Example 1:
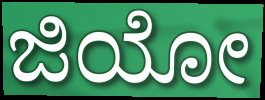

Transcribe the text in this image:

ಜಿಯೋ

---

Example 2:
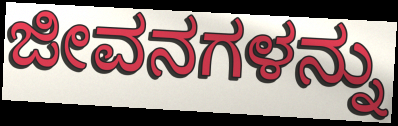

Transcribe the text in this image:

ಜೀವನಗಳನ್ನು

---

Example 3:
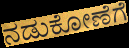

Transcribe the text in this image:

ನಡುಕೋಣೆಗೆ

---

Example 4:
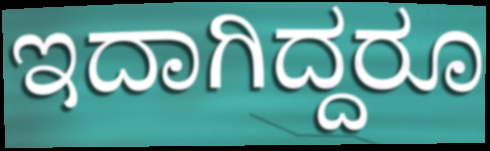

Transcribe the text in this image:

ಇದಾಗಿದ್ದರೂ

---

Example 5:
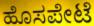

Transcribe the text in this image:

ಹೊಸಪೇಟೆ